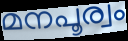
മനപൂര്വം